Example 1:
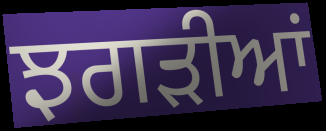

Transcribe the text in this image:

ਝਗੜੀਆਂ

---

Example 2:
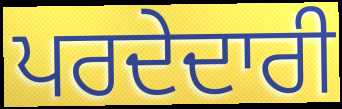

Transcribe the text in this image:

ਪਰਦੇਦਾਰੀ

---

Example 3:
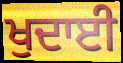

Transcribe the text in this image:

ਖੁਦਾਈ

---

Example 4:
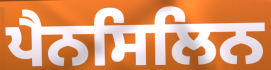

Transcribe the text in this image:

ਪੈਨਸਿਲਿਨ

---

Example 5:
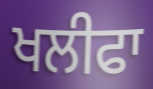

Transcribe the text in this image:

ਖਲੀਫਾ